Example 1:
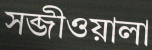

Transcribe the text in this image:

সব্জীওয়ালা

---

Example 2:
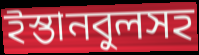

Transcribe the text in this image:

ইস্তানবুলসহ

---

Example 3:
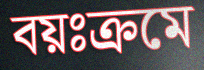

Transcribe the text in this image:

বয়ঃক্রমে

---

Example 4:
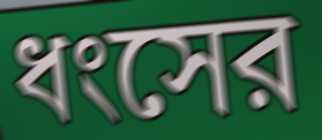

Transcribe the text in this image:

ধংসের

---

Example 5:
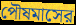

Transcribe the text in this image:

পৌষমাসের